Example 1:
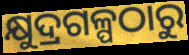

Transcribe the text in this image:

କ୍ଷୁଦ୍ରଗଳ୍ପଠାରୁ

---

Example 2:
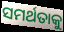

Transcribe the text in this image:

ସମର୍ଥତାକୁ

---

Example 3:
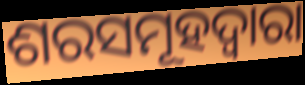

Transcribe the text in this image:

ଶରସମୂହଦ୍ୱାରା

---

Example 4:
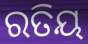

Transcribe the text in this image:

ରତିୟ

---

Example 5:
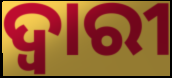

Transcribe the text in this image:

ଦ୍ଵାରୀ